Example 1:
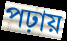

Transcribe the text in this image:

পঢ়ায়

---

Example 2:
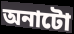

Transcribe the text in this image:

অনাটো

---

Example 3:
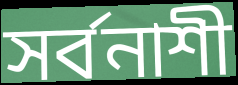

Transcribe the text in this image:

সৰ্বনাশী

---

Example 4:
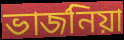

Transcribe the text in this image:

ভাৰ্জনিয়া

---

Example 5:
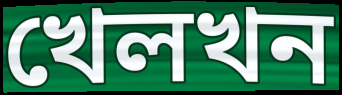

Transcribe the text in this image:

খেলখন